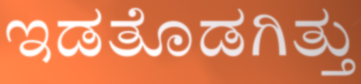
ಇಡತೊಡಗಿತ್ತು